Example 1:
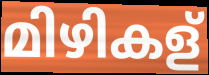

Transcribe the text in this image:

മിഴികള്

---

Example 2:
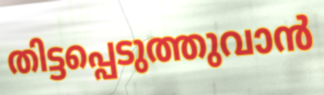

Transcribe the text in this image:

തിട്ടപ്പെടുത്തുവാൻ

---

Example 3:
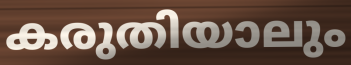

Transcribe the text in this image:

കരുതിയാലും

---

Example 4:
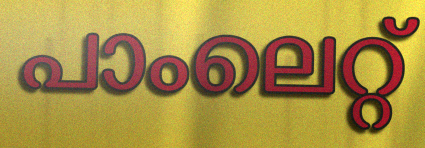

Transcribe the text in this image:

പാംലെറ്റ്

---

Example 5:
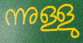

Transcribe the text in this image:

ന്നുള്ളു